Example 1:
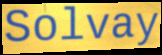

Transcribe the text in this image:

Solvay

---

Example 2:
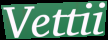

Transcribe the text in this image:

Vettii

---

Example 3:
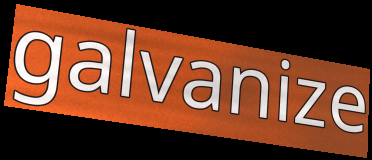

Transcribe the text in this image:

galvanize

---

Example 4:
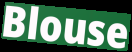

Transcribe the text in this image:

Blouse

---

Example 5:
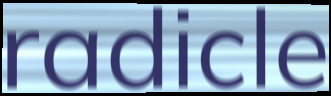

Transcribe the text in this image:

radicle